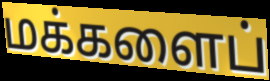
மக்களைப்